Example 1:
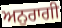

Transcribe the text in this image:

ਅਨੁਰਾਗੀ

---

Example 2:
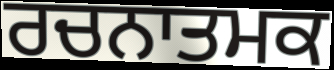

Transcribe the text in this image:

ਰਚਨਾਤਮਕ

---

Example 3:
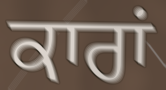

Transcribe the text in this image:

ਕਾਰਾਂ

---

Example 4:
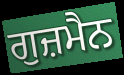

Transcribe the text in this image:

ਗੁਜ਼ਮੈਨ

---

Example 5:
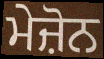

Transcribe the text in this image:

ਮੇਜ਼ੋਨ